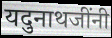
यदुनाथजींनी